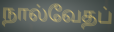
நால்வேதப்